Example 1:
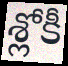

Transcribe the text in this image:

శ్లోకీ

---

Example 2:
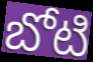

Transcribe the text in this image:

బోటి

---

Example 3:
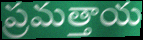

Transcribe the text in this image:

ప్రమత్తాయ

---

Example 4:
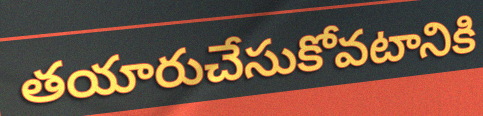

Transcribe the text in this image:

తయారుచేసుకోవటానికి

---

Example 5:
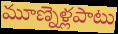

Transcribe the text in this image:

మూణ్నెళ్లపాటు